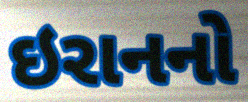
ઇરાનનો